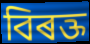
বিৰক্ত